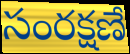
సంరక్షణే